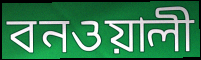
বনওয়ালী